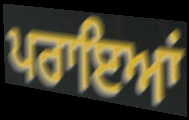
ਪਰਾਇਆਂ